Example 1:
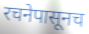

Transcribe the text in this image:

रचनेपासूनच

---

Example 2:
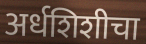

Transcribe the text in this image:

अर्धशिशीचा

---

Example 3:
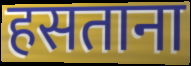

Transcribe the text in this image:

हसताना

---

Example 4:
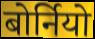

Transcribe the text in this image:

बोर्नियो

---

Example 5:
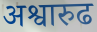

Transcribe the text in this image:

अश्वारुढ